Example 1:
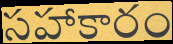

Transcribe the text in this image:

సహాకారం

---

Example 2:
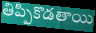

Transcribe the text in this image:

తిప్పికొడతాయి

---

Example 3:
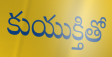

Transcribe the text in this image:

కుయుక్తితో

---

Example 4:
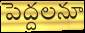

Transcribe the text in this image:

పెద్దలనూ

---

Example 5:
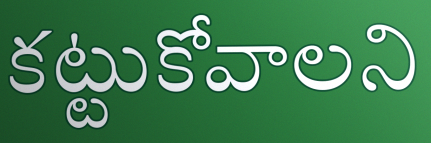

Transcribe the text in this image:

కట్టుకోవాలని